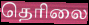
தெரிலை